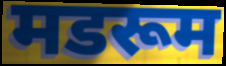
मडरूम